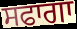
ਸਫਾਗਾ